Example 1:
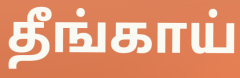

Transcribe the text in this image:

தீங்காய்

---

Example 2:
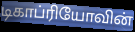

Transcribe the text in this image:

டிகாப்ரியோவின்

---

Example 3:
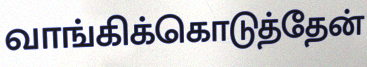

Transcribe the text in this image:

வாங்கிக்கொடுத்தேன்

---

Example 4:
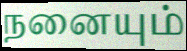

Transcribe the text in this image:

நனையும்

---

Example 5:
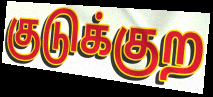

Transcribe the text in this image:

குடுக்குற